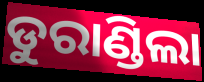
ଡୁରାଣ୍ଡିଲା